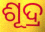
ଶୂଦ୍ର